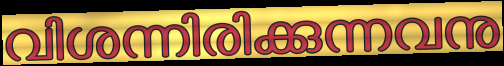
വിശന്നിരിക്കുന്നവനു